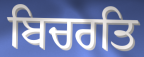
ਬਿਚਰਤਿ